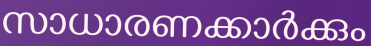
സാധാരണക്കാർക്കും